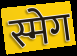
स्मेग